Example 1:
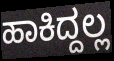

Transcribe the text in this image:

ಹಾಕಿದ್ದಲ್ಲ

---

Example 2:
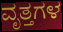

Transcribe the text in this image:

ವೃತ್ತಗಳ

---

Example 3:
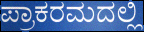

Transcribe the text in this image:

ಪ್ರಾಕರಮದಲ್ಲಿ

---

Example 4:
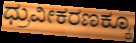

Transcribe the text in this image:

ಧ್ರುವೀಕರಣಕ್ಕೂ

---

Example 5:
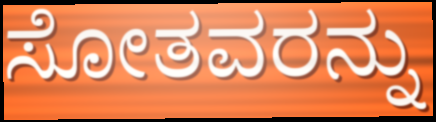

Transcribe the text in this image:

ಸೋತವರನ್ನು